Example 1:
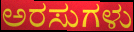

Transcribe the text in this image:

ಅರಸುಗಳು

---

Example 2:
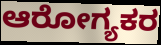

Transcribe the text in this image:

ಆರೋಗ್ಯಕರ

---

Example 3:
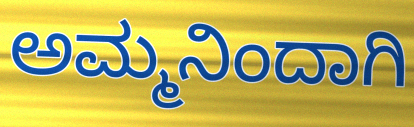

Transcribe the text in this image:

ಅಮ್ಮನಿಂದಾಗಿ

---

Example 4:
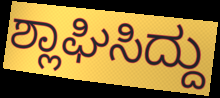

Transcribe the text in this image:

ಶ್ಲಾಘಿಸಿದ್ದು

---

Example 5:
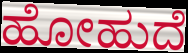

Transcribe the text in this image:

ಹೋಹುದೆ